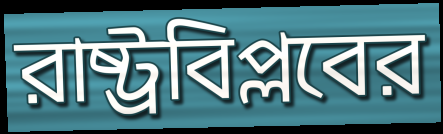
রাষ্ট্রবিপ্লবের